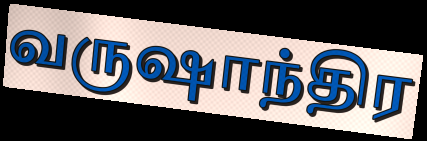
வருஷாந்திர